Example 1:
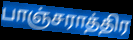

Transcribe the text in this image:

பாஞ்சராத்திர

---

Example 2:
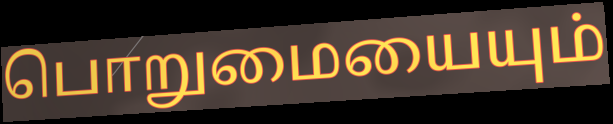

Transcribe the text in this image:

பொறுமையையும்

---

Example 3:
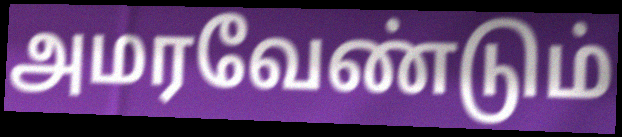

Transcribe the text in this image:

அமரவேண்டும்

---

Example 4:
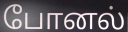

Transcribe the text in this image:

போனல்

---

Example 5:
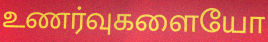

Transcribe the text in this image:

உணர்வுகளையோ